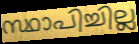
സ്ഥാപിച്ചില്ല